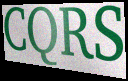
CQRS